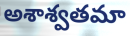
అశాశ్వతమా